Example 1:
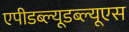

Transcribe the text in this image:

एपीडब्ल्यूडब्ल्यूएस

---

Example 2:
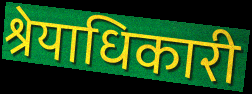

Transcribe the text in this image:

श्रेयाधिकारी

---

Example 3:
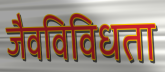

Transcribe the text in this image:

जैवविविधता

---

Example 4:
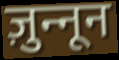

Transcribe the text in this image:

ज़ुन्नून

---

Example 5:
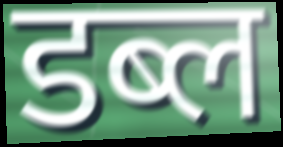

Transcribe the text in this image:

डब्ल